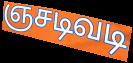
ஞசடிவடி